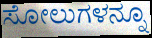
ಸೋಲುಗಳನ್ನೂ